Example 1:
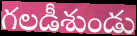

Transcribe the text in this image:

గలడీశుండు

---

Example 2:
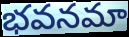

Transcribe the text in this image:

భవనమా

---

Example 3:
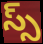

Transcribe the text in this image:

స్స్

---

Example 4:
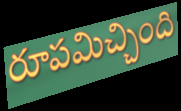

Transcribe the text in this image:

రూపమిచ్చింది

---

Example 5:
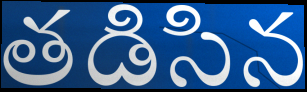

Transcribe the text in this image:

తడిసిన